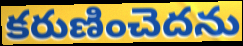
కరుణించెదను